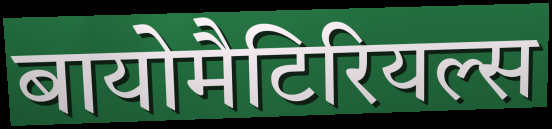
बायोमैटिरियल्स